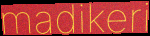
madikeri